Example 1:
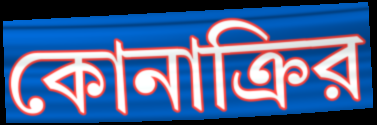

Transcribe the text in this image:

কোনাক্রির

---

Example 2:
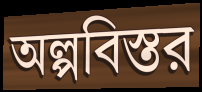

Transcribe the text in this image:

অল্পবিস্তর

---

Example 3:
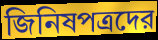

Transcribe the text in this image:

জিনিষপত্রদের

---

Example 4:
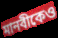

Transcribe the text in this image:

মানবীকেও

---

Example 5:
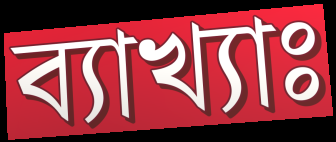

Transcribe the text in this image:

ব্যাখ্যাঃ